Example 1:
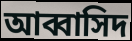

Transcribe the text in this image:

আব্বাসিদ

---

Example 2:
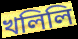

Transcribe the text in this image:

খলিলি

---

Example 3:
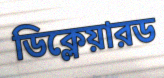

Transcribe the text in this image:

ডিক্লেয়ারড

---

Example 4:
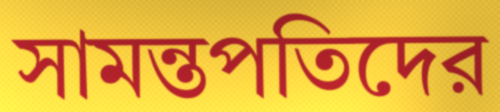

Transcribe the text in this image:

সামন্তপতিদের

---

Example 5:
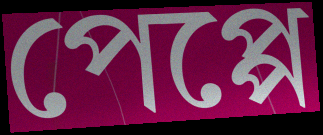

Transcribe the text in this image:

পেপ্পে